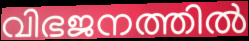
വിഭജനത്തിൽ